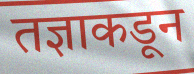
तज्ञाकडून